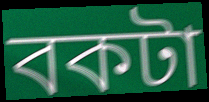
বকটা